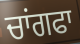
ਚਾਂਗਫਾ